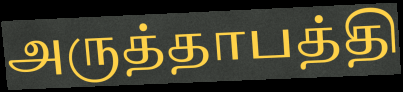
அருத்தாபத்தி